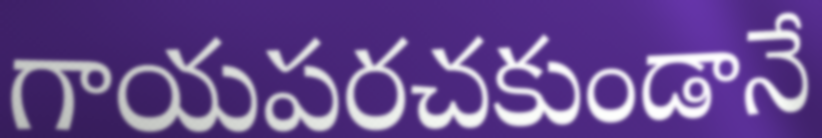
గాయపరచకుండానే